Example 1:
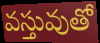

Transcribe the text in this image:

వస్తువుతో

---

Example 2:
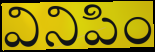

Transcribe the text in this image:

వినిపిం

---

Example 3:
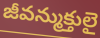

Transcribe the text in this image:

జీవన్ముక్తులై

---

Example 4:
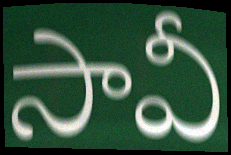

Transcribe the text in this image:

సావీ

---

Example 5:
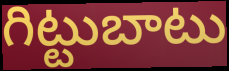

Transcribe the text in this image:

గిట్టుబాటు